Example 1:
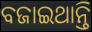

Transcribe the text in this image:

ବଜାଇଥାନ୍ତି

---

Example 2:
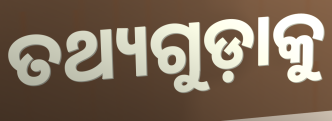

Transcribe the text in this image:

ତଥ୍ୟଗୁଡ଼ାକୁ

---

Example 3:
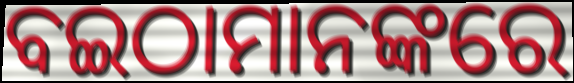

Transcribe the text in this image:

ବଇଠାମାନଙ୍କରେ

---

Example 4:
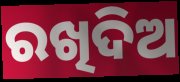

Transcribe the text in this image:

ରଖିଦିଅ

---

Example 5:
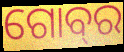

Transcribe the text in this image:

ଗୋବ୍‌ର